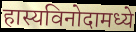
हास्यविनोदामध्ये